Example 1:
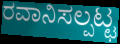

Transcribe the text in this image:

ರವಾನಿಸಲ್ಪಟ್ಟ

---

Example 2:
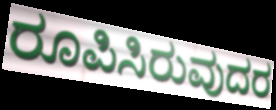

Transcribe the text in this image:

ರೂಪಿಸಿರುವುದರ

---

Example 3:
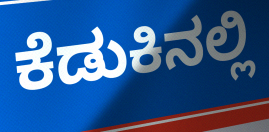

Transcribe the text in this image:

ಕೆಡುಕಿನಲ್ಲಿ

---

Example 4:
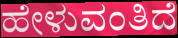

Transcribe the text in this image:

ಹೇಳುವಂತಿದೆ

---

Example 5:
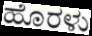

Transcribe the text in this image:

ಹೊರಳು